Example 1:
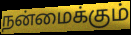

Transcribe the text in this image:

நன்மைக்கும்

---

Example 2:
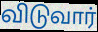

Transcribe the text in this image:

விடுவார்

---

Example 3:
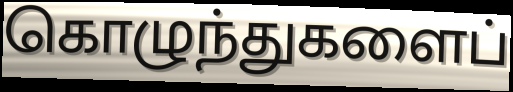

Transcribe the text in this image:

கொழுந்துகளைப்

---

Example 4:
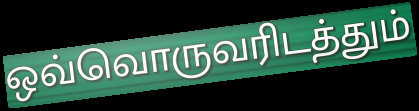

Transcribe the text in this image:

ஒவ்வொருவரிடத்தும்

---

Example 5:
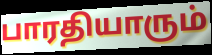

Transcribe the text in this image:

பாரதியாரும்